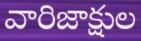
వారిజాక్షుల